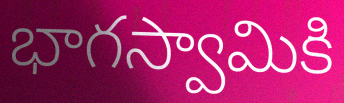
భాగస్వామికి